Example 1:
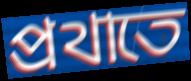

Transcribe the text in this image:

প্ৰথাতে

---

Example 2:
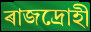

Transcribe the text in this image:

ৰাজদ্ৰোহী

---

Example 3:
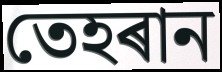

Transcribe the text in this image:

তেহৰান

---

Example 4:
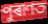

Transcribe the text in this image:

পুৰাণত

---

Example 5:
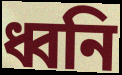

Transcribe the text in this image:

ধ্বনি